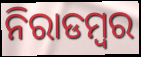
ନିରାଡମ୍ବର